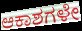
ಆಕಾಶಗಳೇ